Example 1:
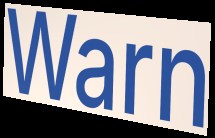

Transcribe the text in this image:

Warn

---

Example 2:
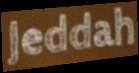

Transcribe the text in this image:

Jeddah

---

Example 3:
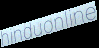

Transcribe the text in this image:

hinduonline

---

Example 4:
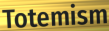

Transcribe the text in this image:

Totemism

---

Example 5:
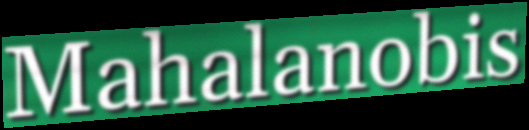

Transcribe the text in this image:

Mahalanobis